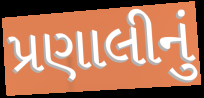
પ્રણાલીનું